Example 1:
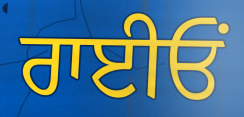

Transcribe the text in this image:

ਰਾਈਓਂ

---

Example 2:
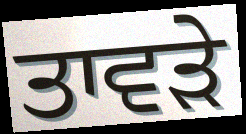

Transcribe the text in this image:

ਤਾਵੜੇ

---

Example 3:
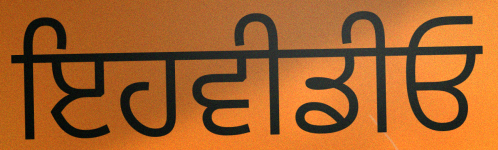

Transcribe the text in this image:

ਇਹਵੀਡੀਓ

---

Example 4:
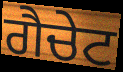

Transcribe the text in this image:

ਗੈਚੇਟ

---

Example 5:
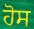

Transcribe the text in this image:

ਹੋਸ